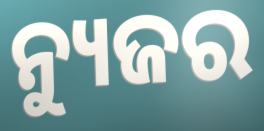
ନ୍ୟୁଜର